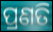
ପ୍ରଣତି